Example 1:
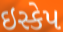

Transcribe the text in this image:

ઇસ્કેપ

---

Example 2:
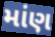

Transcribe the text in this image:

માંણ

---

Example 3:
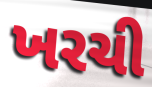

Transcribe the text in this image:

ખરચી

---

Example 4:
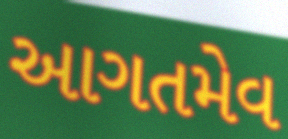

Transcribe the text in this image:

આગતમેવ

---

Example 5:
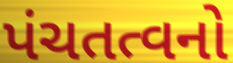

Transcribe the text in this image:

પંચતત્વનો